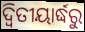
ଦ୍ଵିତୀୟାର୍ଦ୍ଧରୁ